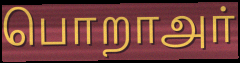
பொறாஅர்